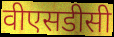
वीएसडीसी